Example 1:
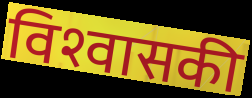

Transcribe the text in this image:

विश्वासकी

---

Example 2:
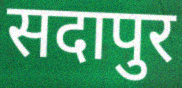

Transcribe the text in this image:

सदापुर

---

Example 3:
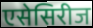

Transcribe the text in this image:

एसेसिरीज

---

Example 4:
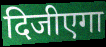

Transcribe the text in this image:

दिजीएगा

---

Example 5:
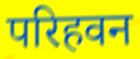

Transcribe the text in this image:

परिहवन